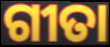
ଗୀତା